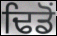
ਢਿਡੋਂ